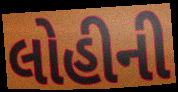
લોહીની